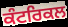
ਕੰਟਰਿਕਲ